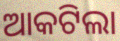
ଆକଟିଲା